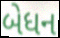
બેધન